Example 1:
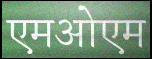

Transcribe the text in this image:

एमओएम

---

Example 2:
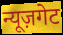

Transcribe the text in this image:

न्यूज़गेट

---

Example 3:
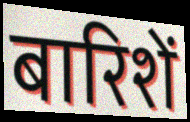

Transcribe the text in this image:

बारिशें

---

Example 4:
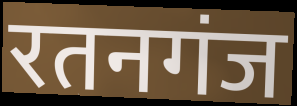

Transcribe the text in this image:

रतनगंज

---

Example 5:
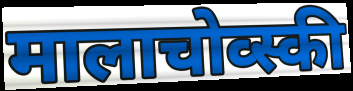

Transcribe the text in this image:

मालाचोव्स्की